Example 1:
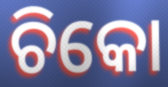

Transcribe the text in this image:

ଚିକୋ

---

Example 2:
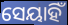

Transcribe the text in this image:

ସେୟାହିଁ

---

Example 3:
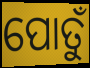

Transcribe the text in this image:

ପୋତୁଁ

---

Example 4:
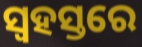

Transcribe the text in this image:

ସ୍ୱହସ୍ତରେ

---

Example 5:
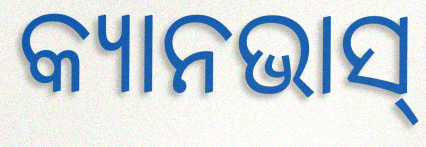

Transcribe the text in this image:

କ୍ୟାନଭାସ୍